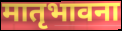
मातृभावना